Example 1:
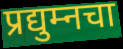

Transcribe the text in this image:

प्रद्युम्नचा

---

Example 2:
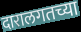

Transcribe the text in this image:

दारालगतच्या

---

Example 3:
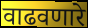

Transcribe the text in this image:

वाढवणारे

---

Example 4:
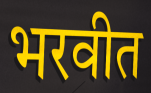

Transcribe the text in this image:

भरवीत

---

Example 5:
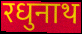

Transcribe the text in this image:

रधुनाथ